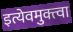
इत्येवमुक्त्वा